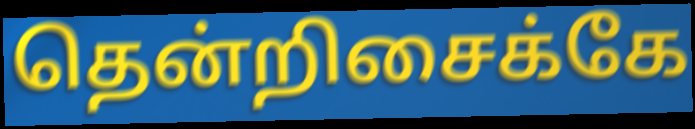
தென்றிசைக்கே